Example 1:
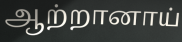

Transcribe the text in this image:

ஆற்றானாய்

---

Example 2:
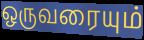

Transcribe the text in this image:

ஒருவரையும்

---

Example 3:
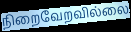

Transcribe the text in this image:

நிறைவேறவில்லை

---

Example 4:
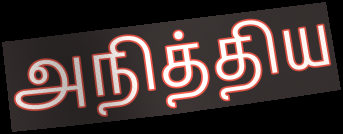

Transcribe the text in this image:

அநித்திய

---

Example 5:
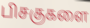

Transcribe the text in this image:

பிசகுகளை